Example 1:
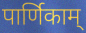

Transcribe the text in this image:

पार्णिकाम्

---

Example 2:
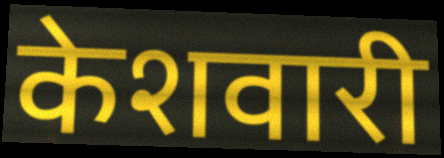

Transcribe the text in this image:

केशवारी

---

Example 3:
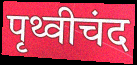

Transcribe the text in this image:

पृथ्वीचंद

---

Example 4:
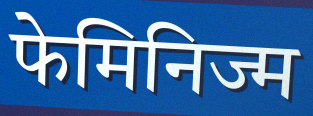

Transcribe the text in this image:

फेमिनिज्‍म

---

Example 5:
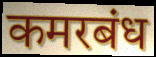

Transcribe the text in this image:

कमरबंध